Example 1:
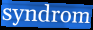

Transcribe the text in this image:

syndrom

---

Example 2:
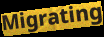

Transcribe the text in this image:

Migrating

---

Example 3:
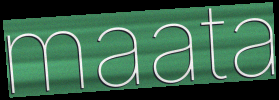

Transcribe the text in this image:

maata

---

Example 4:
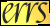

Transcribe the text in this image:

errs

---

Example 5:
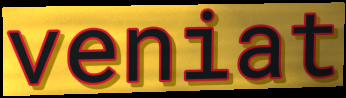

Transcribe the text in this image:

veniat